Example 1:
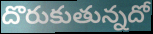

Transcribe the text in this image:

దొరుకుతున్నదో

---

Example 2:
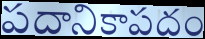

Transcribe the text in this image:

పదానికాపదం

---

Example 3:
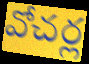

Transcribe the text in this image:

వోచర్ల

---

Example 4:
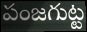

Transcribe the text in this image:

పంజగుట్ట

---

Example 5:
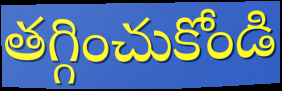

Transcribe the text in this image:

తగ్గించుకోండి